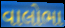
વાલોભા